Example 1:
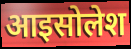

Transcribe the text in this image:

आइसोलेश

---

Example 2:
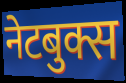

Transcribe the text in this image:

नेटबुक्स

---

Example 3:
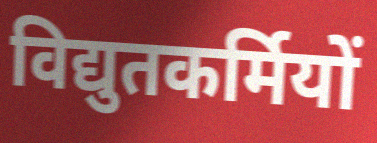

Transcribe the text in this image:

विद्युतकर्मियों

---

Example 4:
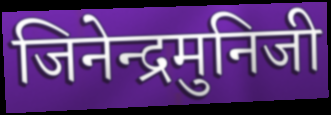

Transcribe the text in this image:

जिनेन्द्रमुनिजी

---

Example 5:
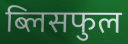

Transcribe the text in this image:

ब्लिसफुल